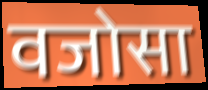
वजोसा